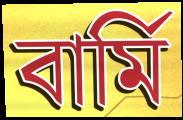
বার্মি